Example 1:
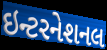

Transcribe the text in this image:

ઇન્ટરનેશનલ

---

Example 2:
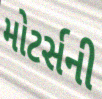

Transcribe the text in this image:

મોટર્સની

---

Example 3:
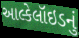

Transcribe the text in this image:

આલ્કેલૉઇડનું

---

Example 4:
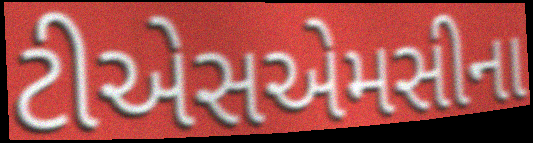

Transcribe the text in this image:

ટીએસએમસીના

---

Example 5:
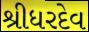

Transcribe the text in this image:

શ્રીધરદેવ